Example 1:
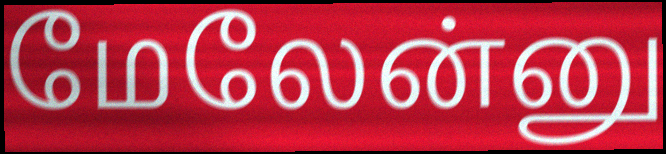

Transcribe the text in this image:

மேலேன்னு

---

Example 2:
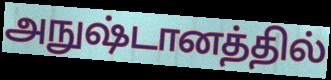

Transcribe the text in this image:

அநுஷ்டானத்தில்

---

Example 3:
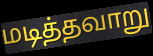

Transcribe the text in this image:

மடித்தவாறு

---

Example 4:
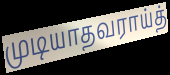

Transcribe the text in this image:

முடியாதவராய்த்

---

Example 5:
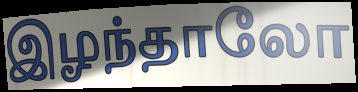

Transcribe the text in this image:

இழந்தாலோ